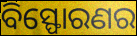
ବିସ୍ଫୋରଣର